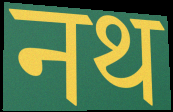
नथ